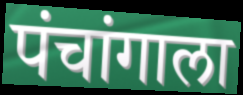
पंचांगाला